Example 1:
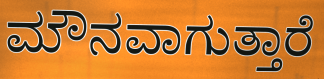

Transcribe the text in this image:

ಮೌನವಾಗುತ್ತಾರೆ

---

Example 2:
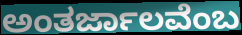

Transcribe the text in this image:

ಅಂತರ್ಜಾಲವೆಂಬ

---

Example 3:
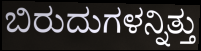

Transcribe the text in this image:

ಬಿರುದುಗಳನ್ನಿತ್ತು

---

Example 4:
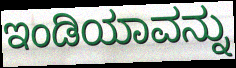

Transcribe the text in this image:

ಇಂಡಿಯಾವನ್ನು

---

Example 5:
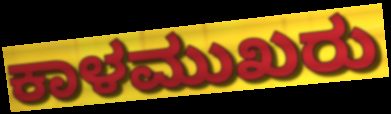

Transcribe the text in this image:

ಕಾಳಮುಖರು